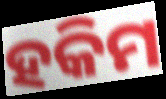
ହକିମ